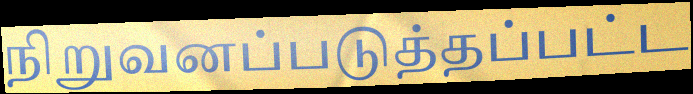
நிறுவனப்படுத்தப்பட்ட